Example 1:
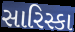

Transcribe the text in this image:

સારિસ્કા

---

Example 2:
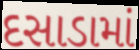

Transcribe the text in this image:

દસાડામાં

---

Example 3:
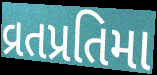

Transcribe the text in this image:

વ્રતપ્રતિમા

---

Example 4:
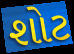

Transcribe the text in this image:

શોટ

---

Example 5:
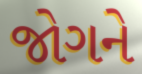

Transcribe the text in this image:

જોગને